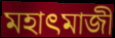
মহাৎমাজী